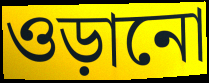
ওড়ানো